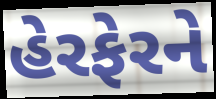
હેરફેરને